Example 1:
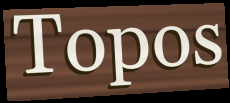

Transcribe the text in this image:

Topos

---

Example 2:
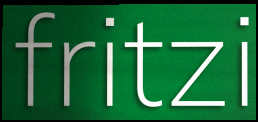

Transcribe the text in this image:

fritzi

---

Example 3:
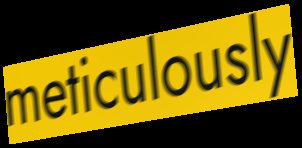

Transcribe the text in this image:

meticulously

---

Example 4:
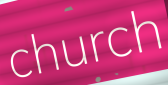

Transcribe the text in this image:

church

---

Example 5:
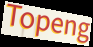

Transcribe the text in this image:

Topeng